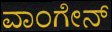
ವಾಂಗೇನ್